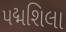
પદ્મશિલા